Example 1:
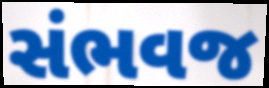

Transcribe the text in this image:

સંભવજ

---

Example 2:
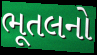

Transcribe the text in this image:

ભૂતલનો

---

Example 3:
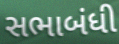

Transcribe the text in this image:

સભાબંધી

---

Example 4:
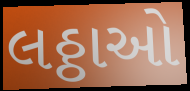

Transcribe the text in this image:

લઠ્ઠાઓ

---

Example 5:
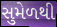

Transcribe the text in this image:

સુમેળથી